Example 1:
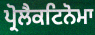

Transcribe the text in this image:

ਪ੍ਰੋਲੈਕਟਿਨੋਮਾ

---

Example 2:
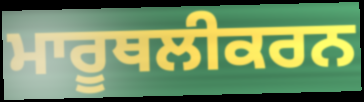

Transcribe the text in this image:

ਮਾਰੂਥਲੀਕਰਨ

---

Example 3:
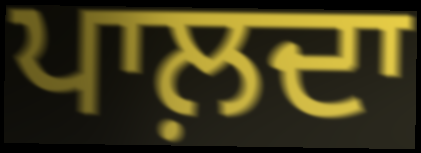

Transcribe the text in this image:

ਪਾਲ਼ਦਾ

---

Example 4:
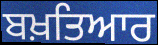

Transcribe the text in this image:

ਬਖ਼ਤਿਆਰ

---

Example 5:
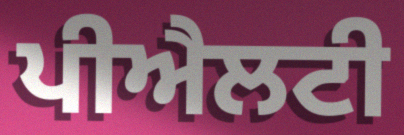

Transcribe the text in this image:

ਪੀਐਲਟੀ